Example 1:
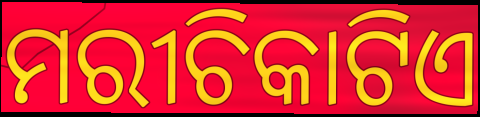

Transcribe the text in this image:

ମରୀଚିକାଟିଏ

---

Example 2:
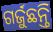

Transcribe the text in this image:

ଗର୍ଜୁଛନ୍ତି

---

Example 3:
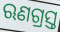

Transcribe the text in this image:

ଋଣଗ୍ରସ୍ତ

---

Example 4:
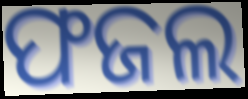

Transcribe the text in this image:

ଫଜଲ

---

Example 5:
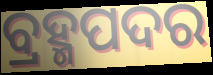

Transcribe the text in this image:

ବ୍ରହ୍ମପଦର